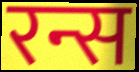
रन्स